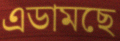
এডামছে